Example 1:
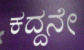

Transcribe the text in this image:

ಕದ್ದನೇ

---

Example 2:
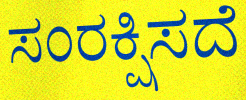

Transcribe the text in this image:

ಸಂರಕ್ಷಿಸದೆ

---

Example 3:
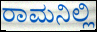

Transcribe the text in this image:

ರಾಮನಿಲ್ಲಿ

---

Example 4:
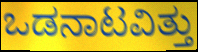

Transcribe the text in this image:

ಒಡನಾಟವಿತ್ತು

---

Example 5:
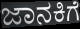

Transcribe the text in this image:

ಜಾನಕಿಗೆ